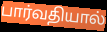
பார்வதியால்